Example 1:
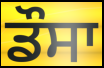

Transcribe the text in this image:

ਡੌਸਾ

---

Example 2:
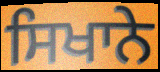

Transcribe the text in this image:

ਸਿਖਾਨੇ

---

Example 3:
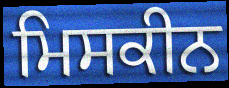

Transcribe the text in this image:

ਮਿਸਕੀਨ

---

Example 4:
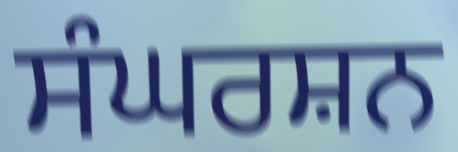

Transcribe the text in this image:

ਸੰਘਰਸ਼ਨ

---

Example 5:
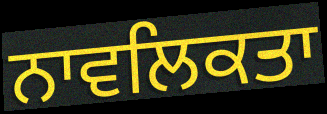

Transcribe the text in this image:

ਨਾਵਲਿਕਤਾ